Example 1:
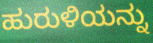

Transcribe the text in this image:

ಹುರುಳಿಯನ್ನು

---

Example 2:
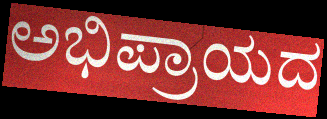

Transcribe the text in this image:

ಅಭಿಪ್ರಾಯದ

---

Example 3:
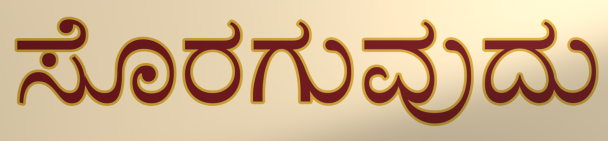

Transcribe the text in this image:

ಸೊರಗುವುದು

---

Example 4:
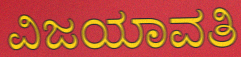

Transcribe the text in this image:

ವಿಜಯಾವತಿ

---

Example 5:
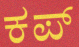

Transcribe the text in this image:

ಕಪ್